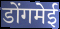
डोंगमेई